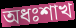
অধঃশাখ